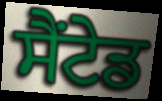
ਸੈਂਟੇਡ